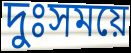
দুঃসময়ে